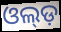
ଓଲ୍ଡ଼